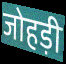
जोहड़ी